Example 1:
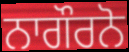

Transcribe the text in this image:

ਨਾਗੌਰਨੋ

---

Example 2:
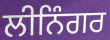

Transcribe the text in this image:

ਲੀਨਿੰਗਰ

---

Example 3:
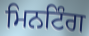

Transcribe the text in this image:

ਮਿਨਟਿੰਗ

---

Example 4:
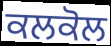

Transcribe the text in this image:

ਕਲਕੋਲ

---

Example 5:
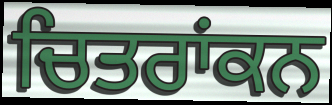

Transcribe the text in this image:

ਚਿਤਰਾਂਕਨ